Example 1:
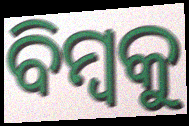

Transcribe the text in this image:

ବିମ୍ବକୁ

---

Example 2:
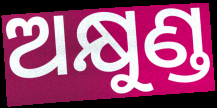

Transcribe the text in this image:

ଅକ୍ଷୁଣ୍ଡ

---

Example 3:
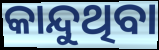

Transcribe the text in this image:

କାନ୍ଦୁଥିବା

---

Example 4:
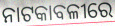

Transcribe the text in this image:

ନାଟକାବଳୀରେ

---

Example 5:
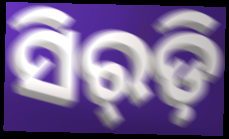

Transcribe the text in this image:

ସିର୍‌ଡ଼ି